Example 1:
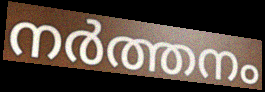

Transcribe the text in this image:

നർത്തനം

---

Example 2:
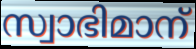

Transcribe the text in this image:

സ്വാഭിമാന്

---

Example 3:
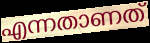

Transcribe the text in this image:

എന്നതാണത്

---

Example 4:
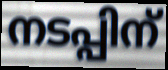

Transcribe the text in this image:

നടപ്പിന്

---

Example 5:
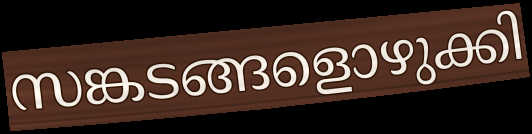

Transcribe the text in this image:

സങ്കടങ്ങളൊഴുക്കി